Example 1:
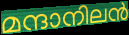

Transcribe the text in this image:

മന്ദാനിലൻ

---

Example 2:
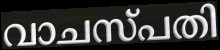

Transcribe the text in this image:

വാചസ്പതി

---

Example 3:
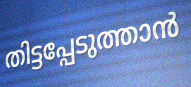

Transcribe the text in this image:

തിട്ടപ്പേടുത്താൻ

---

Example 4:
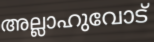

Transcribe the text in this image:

അല്ലാഹുവോട്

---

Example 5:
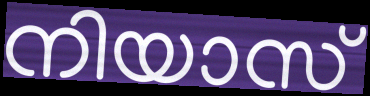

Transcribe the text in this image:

നിയാസ്